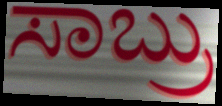
ಸಾಬ್ರು